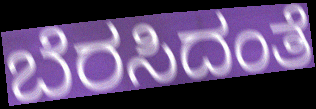
ಬೆರಸಿದಂತೆ